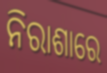
ନିରାଶାରେ